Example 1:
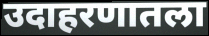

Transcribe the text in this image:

उदाहरणातला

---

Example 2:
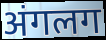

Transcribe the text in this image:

अंगलग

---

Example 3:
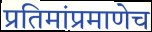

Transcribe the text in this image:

प्रतिमांप्रमाणेच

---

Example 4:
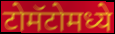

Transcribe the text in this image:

टोमॅटोमध्ये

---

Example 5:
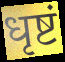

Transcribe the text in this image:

धृष्टं